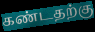
கண்டதற்கு